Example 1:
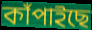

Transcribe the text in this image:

কাঁপাইছে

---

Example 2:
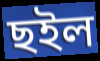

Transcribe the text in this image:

ছইল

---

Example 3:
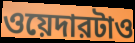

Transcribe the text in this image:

ওয়েদারটাও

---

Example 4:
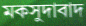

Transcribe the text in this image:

মকসুদাবাদ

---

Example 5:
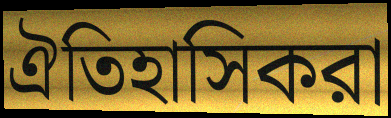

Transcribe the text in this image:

ঐতিহাসিকরা